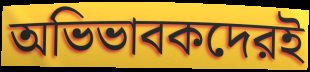
অভিভাবকদেরই